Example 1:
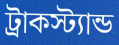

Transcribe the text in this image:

ট্রাকস্ট্যান্ড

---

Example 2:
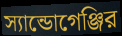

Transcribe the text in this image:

স্যান্ডোগেঞ্জির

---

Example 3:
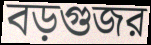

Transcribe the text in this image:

বড়গুজর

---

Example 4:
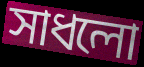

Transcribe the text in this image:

সাধলো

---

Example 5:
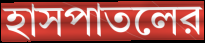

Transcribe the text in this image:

হাসপাতলের